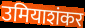
उमियाशंकर